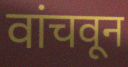
वांचवून